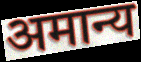
अमान्य